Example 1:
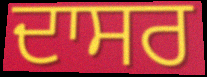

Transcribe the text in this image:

ਦਾਸਰ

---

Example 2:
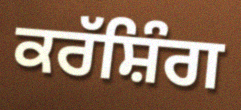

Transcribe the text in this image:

ਕਰੱਸ਼ਿੰਗ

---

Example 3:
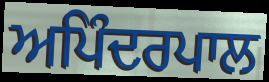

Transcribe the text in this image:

ਅਪਿੰਦਰਪਾਲ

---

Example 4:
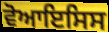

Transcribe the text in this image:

ਵੋਆਇਸਿਸ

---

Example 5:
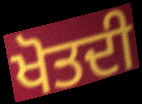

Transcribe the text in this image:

ਖੋਤਦੀ